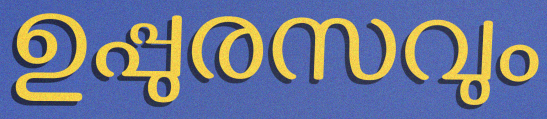
ഉപ്പുരസവും